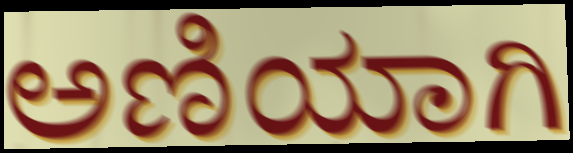
ಅಣಿಯಾಗಿ